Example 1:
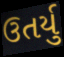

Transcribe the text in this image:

ઉતર્યુ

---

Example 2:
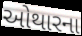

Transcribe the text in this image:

ઓથારના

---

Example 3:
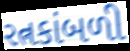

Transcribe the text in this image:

રત્નકાંબળી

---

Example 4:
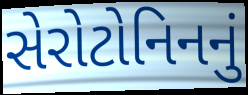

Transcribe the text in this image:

સેરોટોનિનનું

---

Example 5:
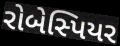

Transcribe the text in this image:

રોબેસ્પિયર